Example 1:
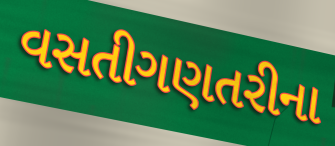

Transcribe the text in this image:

વસતીગણતરીના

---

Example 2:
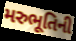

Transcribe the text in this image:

મરુભૂતિની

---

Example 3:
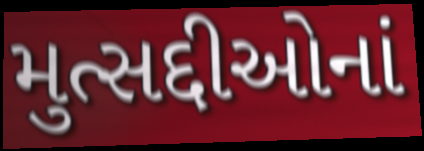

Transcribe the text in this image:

મુત્સદ્દીઓનાં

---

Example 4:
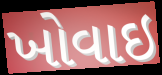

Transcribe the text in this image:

ખોવાઇ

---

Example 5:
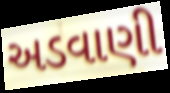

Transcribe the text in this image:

અડવાણી